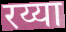
रय्या